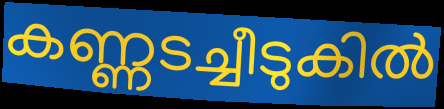
കണ്ണടച്ചീടുകിൽ